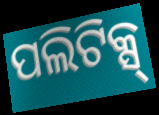
ପଲିଟିକ୍ସ୍